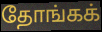
தோங்கக்